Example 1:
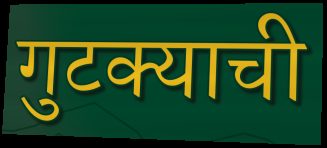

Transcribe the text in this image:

गुटक्याची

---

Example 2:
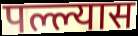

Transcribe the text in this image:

पल्ल्यास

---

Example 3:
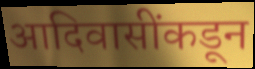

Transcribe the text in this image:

आदिवासींकडून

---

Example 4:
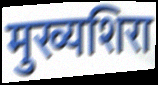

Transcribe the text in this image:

मुख्यशिरा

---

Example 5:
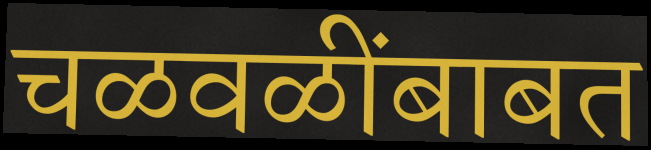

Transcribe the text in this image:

चळवळींबाबत